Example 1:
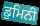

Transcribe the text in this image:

ਡੁਮਿਨੀ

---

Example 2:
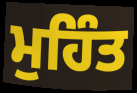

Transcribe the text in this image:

ਮੁਹਿੰਤ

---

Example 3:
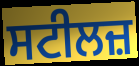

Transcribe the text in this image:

ਸਟੀਲਜ਼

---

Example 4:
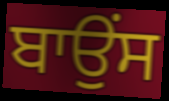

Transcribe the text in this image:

ਬਾਉਂਸ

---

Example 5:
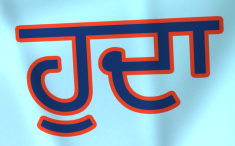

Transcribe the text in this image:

ਹੁਦਾ